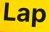
Lap